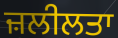
ਜ਼ਲੀਲਤਾ